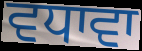
ਵਧਾਵਾ